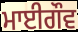
ਮਾਈਗੌਵ